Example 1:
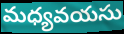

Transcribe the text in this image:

మధ్యవయసు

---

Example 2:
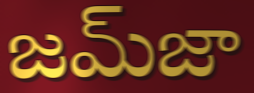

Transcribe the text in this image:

జమ్‌జా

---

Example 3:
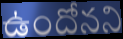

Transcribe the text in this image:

ఉందోనని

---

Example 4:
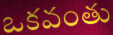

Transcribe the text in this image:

ఒకవంతు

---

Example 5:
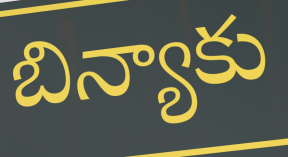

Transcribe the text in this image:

బిన్యాకు